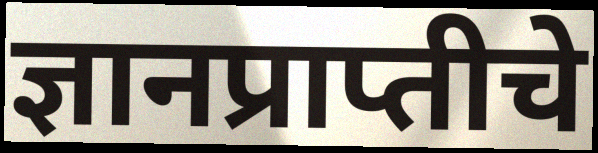
ज्ञानप्राप्तीचे